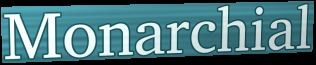
Monarchial